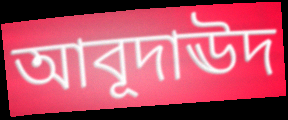
আবূদাঊদ